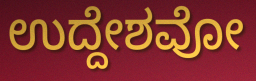
ಉದ್ದೇಶವೋ